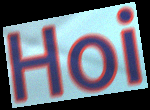
Hoi